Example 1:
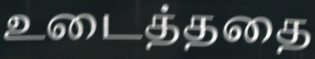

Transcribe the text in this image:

உடைத்ததை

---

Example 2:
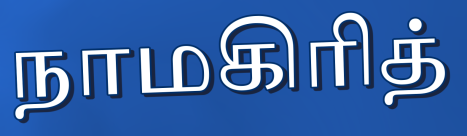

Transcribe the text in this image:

நாமகிரித்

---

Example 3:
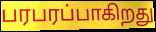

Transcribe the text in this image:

பரபரப்பாகிறது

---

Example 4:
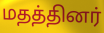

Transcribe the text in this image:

மதத்தினர்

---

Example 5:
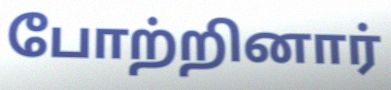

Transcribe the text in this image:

போற்றினார்